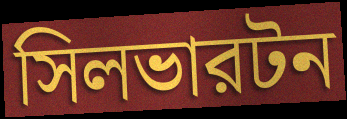
সিলভারটন